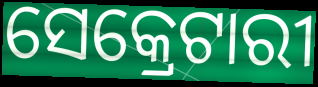
ସେକ୍ରେଟାରୀ